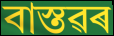
বাস্তৱৰ